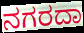
ನಗರದಾ